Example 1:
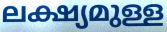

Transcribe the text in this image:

ലക്ഷ്യമുള്ള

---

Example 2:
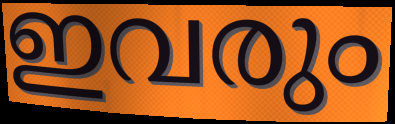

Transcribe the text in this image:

ഇവരും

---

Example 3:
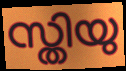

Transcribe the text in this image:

സ്തിയു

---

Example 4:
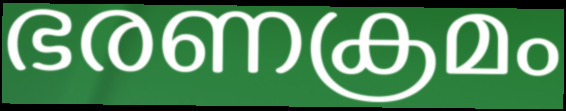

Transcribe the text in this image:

ഭരണക്രമം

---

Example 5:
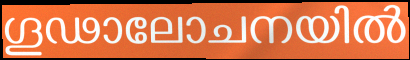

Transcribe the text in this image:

ഗൂഢാലോചനയിൽ